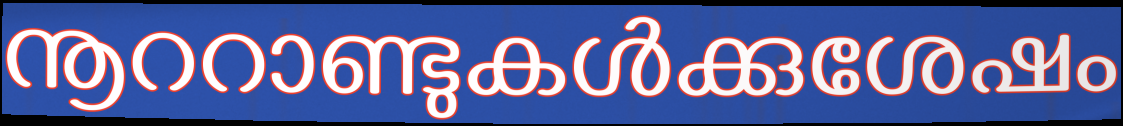
നൂററാണ്ടുകൾക്കുശേഷം